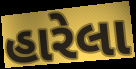
હારેલા